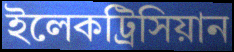
ইলেকট্রিসিয়ান